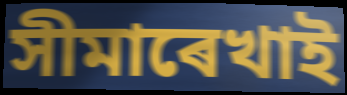
সীমাৰেখাই